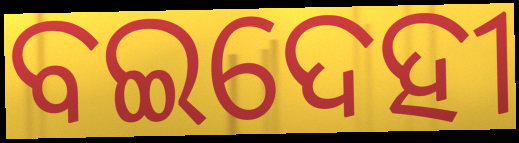
ବଇଦେହୀ